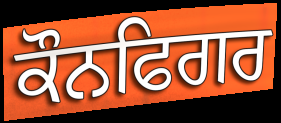
ਕੌਨਫਿਗਰ